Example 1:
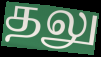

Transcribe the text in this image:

தலு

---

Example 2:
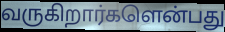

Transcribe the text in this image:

வருகிறார்களென்பது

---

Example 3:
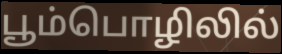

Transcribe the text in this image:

பூம்பொழிலில்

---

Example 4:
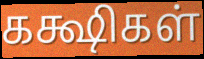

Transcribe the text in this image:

கக்ஷிகள்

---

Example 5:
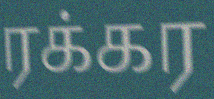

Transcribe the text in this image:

ரக்கர